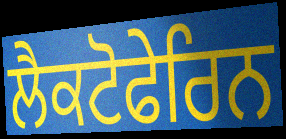
ਲੈਕਟੋਫੇਰਿਨ